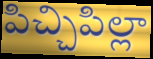
పిచ్చిపిల్లా